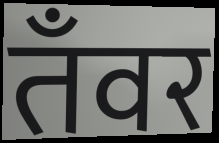
तँवर